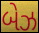
બેઝ